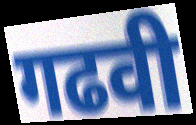
गढवी